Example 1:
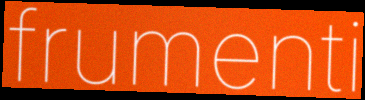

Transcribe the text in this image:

frumenti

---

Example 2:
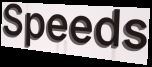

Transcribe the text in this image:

Speeds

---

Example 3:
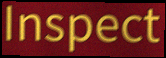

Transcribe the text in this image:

Inspect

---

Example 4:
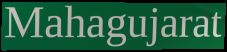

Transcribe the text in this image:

Mahagujarat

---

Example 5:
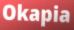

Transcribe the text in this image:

Okapia